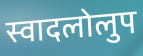
स्वादलोलुप